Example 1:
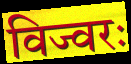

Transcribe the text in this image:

विज्वरः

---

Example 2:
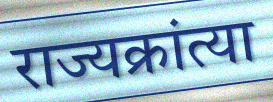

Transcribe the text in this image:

राज्यक्रांत्या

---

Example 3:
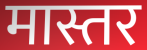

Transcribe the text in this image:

मास्तर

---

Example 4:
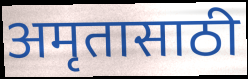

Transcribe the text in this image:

अमृतासाठी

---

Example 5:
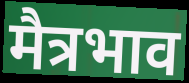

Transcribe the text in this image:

मैत्रभाव